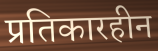
प्रतिकारहीन